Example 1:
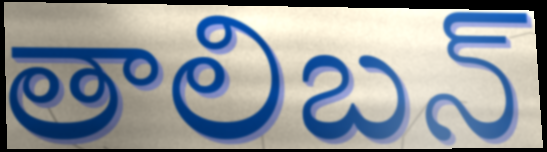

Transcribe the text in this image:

తాలిబన్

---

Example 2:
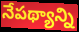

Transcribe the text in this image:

నేపథ్యాన్ని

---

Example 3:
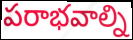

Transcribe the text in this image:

పరాభవాల్ని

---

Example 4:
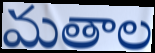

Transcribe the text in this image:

మతాల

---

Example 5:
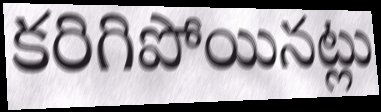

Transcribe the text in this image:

కరిగిపోయినట్లు